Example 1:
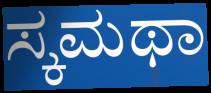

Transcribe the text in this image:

ಸ್ಕಮಥಾ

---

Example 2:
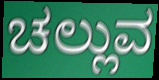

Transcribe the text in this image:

ಚಲ್ಲುವ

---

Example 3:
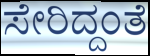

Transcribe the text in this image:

ಸೇರಿದ್ದಂತೆ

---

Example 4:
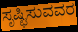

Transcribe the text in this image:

ಸೃಷ್ಟಿಸುವವರ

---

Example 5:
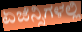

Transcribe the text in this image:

ಏಜೆನ್ಸಿಗಳಲ್ಲಿ